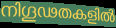
നിഗൂഢതകളിൽ